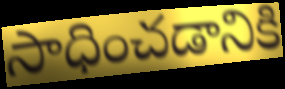
సాధించడానికి